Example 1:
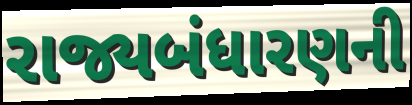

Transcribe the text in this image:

રાજ્યબંધારણની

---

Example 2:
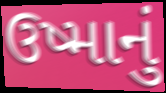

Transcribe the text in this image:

ઉષ્માનું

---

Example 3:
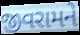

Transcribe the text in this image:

જીવરામને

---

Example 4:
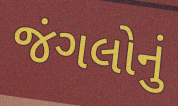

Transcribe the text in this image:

જંગલોનું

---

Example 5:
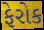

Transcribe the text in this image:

ફેરોક